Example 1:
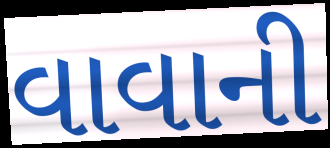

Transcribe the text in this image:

વાવાની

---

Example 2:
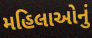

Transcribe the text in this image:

મહિલાઓનું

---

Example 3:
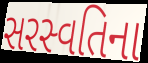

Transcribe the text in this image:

સરસ્વતિના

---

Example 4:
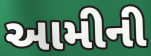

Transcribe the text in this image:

આમીની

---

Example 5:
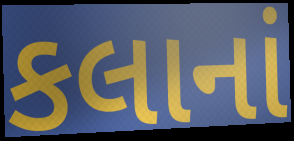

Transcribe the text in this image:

કલાનાં